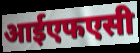
आईएफएसी